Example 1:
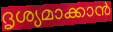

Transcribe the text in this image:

ദൃശ്യമാക്കാൻ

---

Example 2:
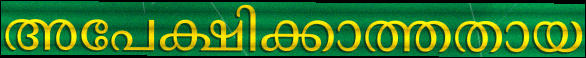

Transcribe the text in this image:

അപേക്ഷിക്കാത്തതായ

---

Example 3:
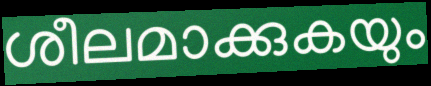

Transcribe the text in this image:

ശീലമാക്കുകയും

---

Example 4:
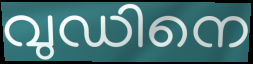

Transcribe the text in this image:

വുഡിനെ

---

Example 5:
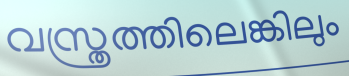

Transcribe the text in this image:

വസ്ത്രത്തിലെങ്കിലും